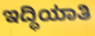
ಇದ್ಧಿಯಾತಿ